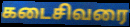
கடைசிவரை